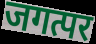
जगत्पर